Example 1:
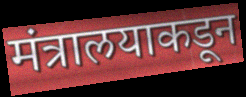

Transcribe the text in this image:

मंत्रालयाकडून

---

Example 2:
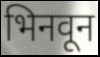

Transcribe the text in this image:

भिनवून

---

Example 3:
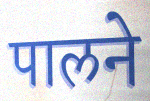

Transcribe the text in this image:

पालने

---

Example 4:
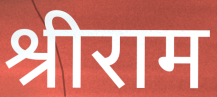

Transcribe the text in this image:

श्रीराम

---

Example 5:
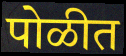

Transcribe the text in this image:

पोळीत